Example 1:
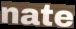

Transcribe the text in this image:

nate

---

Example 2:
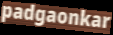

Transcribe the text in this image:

padgaonkar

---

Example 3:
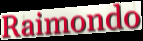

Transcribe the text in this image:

Raimondo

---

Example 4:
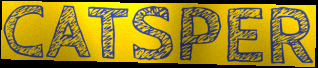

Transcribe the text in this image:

CATSPER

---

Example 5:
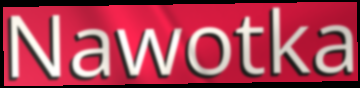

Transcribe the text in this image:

Nawotka